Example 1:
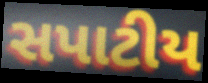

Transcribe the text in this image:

સપાટીય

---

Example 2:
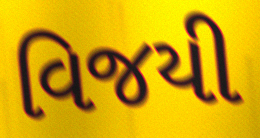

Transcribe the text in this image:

વિજયી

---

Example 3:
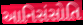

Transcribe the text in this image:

આનિસંસોતિ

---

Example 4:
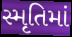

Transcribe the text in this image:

સ્મૃતિમાં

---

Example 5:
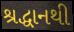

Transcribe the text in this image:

શ્રદ્ધાનથી